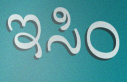
ಇಸಿಂ